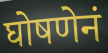
घोषणेनं